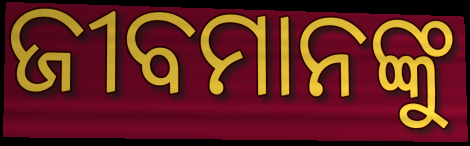
ଜୀବମାନଙ୍କୁ